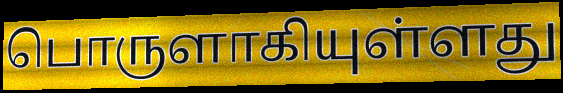
பொருளாகியுள்ளது